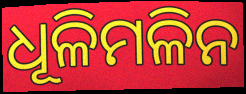
ଧୂଳିମଳିନ